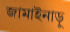
জামাইনাড়ু